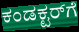
ಕಂಡಕ್ಟರ್‌ಗೆ